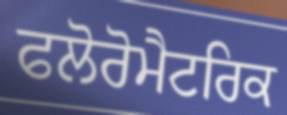
ਫਲੋਰੋਮੈਟਰਿਕ